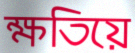
ক্ষতিয়ে